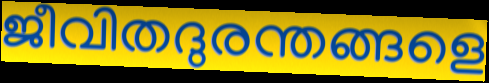
ജീവിതദുരന്തങ്ങളെ